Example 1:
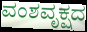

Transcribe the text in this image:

ವಂಶವೃಕ್ಷದ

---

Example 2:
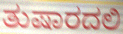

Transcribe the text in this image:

ತುಷಾರದಲಿ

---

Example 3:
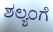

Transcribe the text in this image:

ಶಲ್ಯಂಗೆ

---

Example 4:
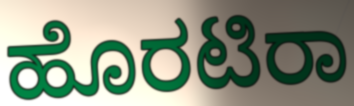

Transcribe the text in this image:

ಹೊರಟಿರಾ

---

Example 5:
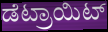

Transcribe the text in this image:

ಡೆಟ್ರಾಯಿಟ್